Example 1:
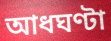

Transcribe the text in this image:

আধঘণ্টা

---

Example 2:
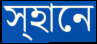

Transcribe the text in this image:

স্হানে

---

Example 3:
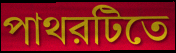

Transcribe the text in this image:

পাথরটিতে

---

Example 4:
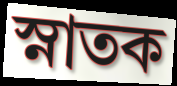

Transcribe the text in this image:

স্নাতক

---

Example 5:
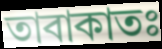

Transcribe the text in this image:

তাবাকাতঃ